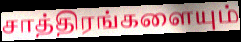
சாத்திரங்களையும்